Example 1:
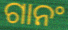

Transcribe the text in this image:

ଗାନଂ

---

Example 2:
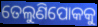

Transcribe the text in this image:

ତେଲୁଣିପୋକକୁ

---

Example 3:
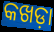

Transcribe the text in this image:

କଖଡ଼ା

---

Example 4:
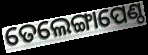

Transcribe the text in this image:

ତେଲେଙ୍ଗାପେଣ୍ଠ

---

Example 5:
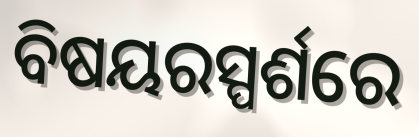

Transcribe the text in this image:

ବିଷୟରସ୍ପର୍ଶରେ